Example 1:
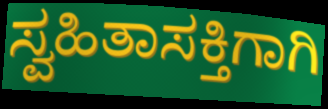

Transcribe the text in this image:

ಸ್ವಹಿತಾಸಕ್ತಿಗಾಗಿ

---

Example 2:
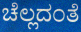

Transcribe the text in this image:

ಚೆಲ್ಲದಂತೆ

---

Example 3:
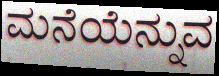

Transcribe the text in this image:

ಮನೆಯೆನ್ನುವ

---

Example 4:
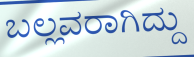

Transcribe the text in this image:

ಬಲ್ಲವರಾಗಿದ್ದು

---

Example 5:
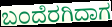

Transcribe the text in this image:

ಬಂದೆರಗಿದಾಗ